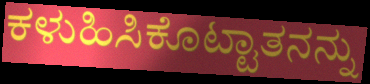
ಕಳುಹಿಸಿಕೊಟ್ಟಾತನನ್ನು